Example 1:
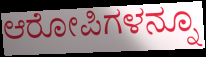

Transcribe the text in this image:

ಆರೋಪಿಗಳನ್ನೂ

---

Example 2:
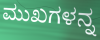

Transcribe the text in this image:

ಮುಖಗಳನ್ನ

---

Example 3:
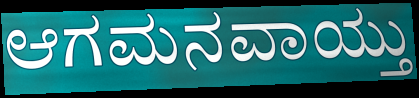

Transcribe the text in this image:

ಆಗಮನವಾಯ್ತು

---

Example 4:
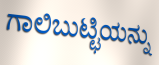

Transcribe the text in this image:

ಗಾಲಿಬುಟ್ಟಿಯನ್ನು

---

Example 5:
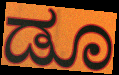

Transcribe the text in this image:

ಡೂ